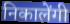
निकालेंगी